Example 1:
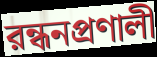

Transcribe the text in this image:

রন্ধনপ্রণালী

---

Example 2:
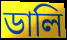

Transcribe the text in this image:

ডালি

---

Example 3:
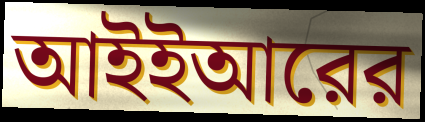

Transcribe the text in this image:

আইইআরের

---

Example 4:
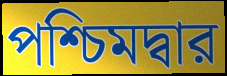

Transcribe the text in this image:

পশ্চিমদ্বার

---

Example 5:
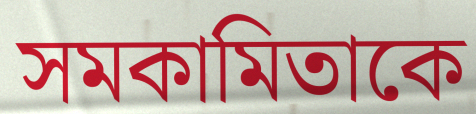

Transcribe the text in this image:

সমকামিতাকে